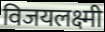
विजयलक्ष्मी